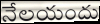
నేలయందు